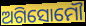
ଅଗିସୋମୌ